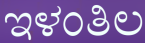
ಇಳಂತಿಲ